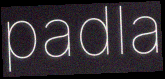
padla